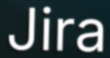
Jira